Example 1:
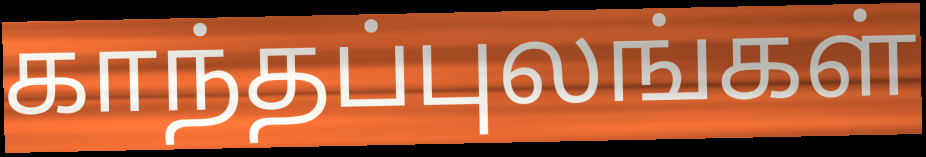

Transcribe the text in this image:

காந்தப்புலங்கள்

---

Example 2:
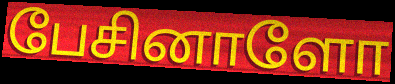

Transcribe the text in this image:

பேசினாளோ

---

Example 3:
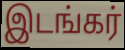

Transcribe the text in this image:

இடங்கர்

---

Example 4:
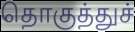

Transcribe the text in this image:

தொகுத்துச்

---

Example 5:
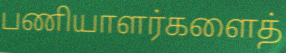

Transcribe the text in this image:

பணியாளர்களைத்